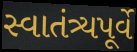
સ્વાતંત્ર્યપૂર્વે